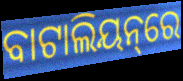
ବାଟାଲିୟନ୍‌ରେ